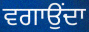
ਵਗਾਉਂਦਾ